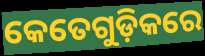
କେତେଗୁଡ଼ିକରେ